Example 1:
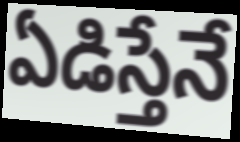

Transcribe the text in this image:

ఏడిస్తేనే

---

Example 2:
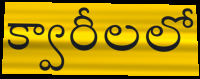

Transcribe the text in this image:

క్వారీలలో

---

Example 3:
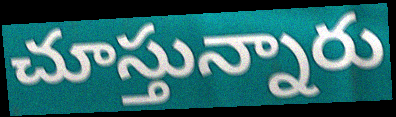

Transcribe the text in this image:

చూస్తున్నారు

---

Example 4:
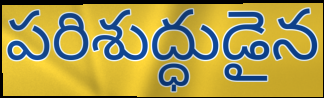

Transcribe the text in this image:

పరిశుద్ధుడైన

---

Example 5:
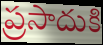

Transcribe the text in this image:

ప్రసాదుకి